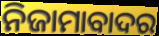
ନିଜାମାବାଦର